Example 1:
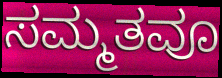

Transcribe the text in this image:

ಸಮ್ಮತವೂ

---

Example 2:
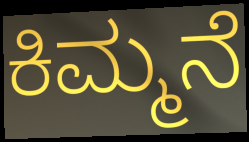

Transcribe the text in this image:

ಕಿಮ್ಮನೆ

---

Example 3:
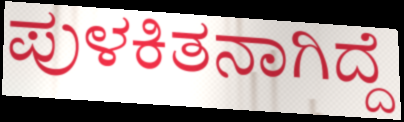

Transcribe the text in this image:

ಪುಳಕಿತನಾಗಿದ್ದೆ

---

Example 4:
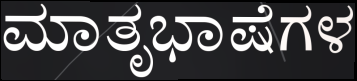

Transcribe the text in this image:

ಮಾತೃಭಾಷೆಗಳ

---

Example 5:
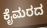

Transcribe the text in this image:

ಕೈಮರದ